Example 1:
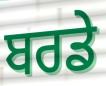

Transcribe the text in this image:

ਬਰਡੇ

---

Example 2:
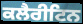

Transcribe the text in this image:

ਕਲੈਰੀਟਿਨ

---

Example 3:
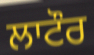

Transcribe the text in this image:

ਲਾਟੌਰ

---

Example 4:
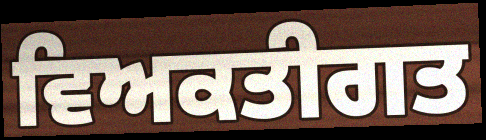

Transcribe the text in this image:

ਵਿਅਕਤੀਗਤ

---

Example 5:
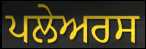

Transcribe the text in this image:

ਪਲੇਅਰਸ